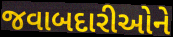
જવાબદારીઓને